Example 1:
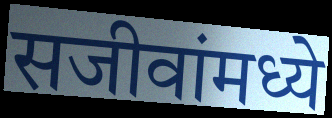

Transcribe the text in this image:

सजीवांमध्ये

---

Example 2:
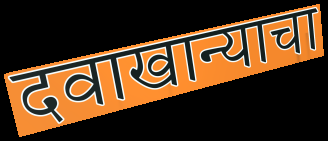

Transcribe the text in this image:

दवाखान्याचा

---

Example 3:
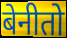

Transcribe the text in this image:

बेनीतो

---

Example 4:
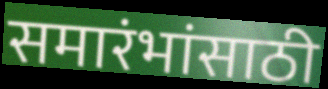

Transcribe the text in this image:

समारंभांसाठी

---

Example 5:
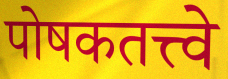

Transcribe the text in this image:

पोषकतत्त्वे